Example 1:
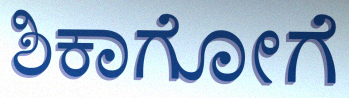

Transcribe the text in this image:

ಶಿಕಾಗೋಗೆ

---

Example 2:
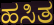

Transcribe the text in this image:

ಹಸಿತ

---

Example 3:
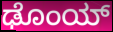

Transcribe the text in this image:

ಢೊಂಯ್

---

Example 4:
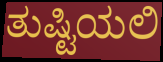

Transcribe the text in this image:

ತುಷ್ಟಿಯಲಿ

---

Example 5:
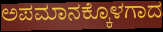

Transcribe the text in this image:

ಅಪಮಾನಕ್ಕೊಳಗಾದ